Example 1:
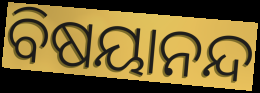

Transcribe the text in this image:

ବିଷୟାନନ୍ଦ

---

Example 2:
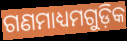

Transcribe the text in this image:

ଗଣମାଧ୍ୟମଗୁଡ଼ିକ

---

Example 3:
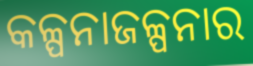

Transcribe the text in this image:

କଳ୍ପନାଜଳ୍ପନାର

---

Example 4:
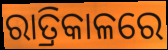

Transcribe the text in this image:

ରାତ୍ରିକାଳରେ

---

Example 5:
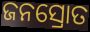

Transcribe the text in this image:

ଜନସ୍ରୋତ